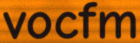
vocfm